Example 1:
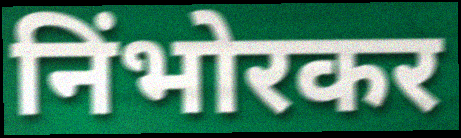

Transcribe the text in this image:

निंभोरकर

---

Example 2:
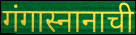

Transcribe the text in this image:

गंगास्नानाची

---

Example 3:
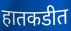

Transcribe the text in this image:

हातकडीत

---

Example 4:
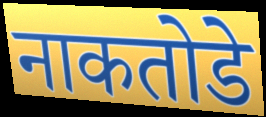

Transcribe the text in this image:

नाकतोडे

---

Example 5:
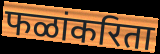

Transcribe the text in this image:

फळांकरिता